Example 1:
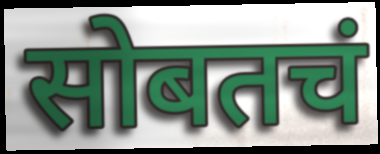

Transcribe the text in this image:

सोबतचं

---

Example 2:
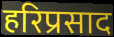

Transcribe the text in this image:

हरिप्रसाद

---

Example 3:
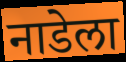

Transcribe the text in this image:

नाडेला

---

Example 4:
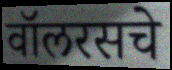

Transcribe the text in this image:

वॉलरसचे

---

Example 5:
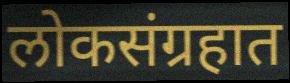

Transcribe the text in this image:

लोकसंग्रहात